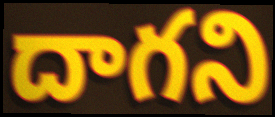
దాగని